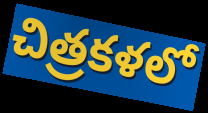
చిత్రకళలో